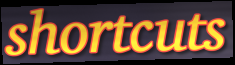
shortcuts